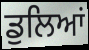
ਡੁਲਿਆਂ